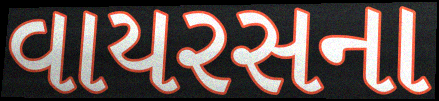
વાયરસના